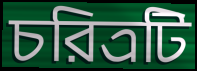
চরিত্রটি